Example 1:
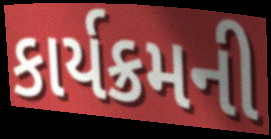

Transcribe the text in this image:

કાર્યક્રમની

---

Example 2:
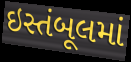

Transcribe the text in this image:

ઇસ્તંબૂલમાં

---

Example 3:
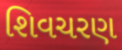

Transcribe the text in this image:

શિવચરણ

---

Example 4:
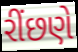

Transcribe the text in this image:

રીંછણે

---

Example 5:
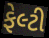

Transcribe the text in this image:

ફેલ્ટી